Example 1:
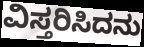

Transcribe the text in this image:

ವಿಸ್ತರಿಸಿದನು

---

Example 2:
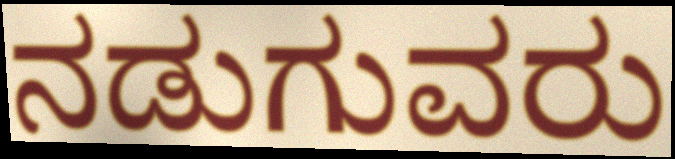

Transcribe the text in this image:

ನಡುಗುವರು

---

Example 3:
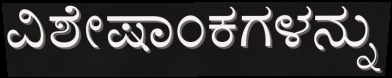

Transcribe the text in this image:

ವಿಶೇಷಾಂಕಗಳನ್ನು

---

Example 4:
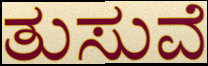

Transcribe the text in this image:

ತುಸುವೆ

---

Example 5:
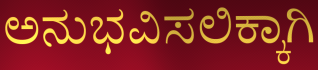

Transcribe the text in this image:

ಅನುಭವಿಸಲಿಕ್ಕಾಗಿ